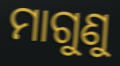
ମାଗୁଣୁ